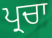
ਪ੍ਰਚਾ